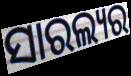
ସାରଲ୍ୟର